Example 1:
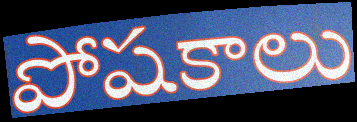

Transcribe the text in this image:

పోషకాలు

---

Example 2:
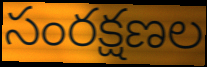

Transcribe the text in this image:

సంరక్షణల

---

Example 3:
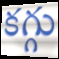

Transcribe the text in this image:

కగ్గు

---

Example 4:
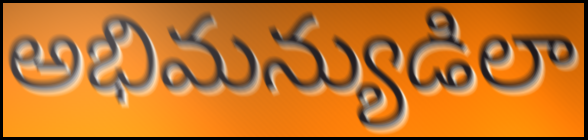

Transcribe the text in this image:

అభిమన్యుడిలా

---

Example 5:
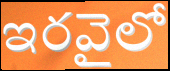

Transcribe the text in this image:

ఇరవైలో